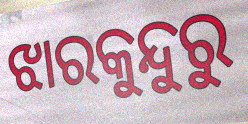
ଝାରକୁନ୍ଦୁରୁ